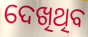
ଦେଖିଥିବ